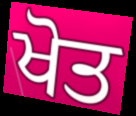
ਖੋਤ